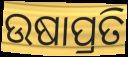
ଉଷାପ୍ରତି